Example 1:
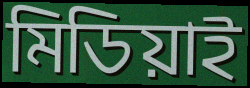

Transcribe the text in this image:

মিডিয়াই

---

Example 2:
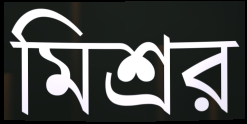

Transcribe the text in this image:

মিশ্রর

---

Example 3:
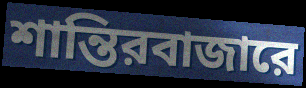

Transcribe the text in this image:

শান্তিরবাজারে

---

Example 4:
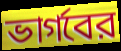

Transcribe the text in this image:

ভার্গবের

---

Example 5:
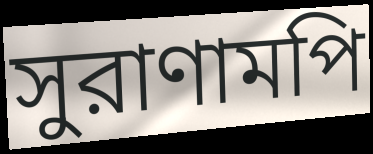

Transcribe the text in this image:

সুরাণামপি